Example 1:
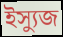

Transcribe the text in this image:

ইস্যুজ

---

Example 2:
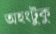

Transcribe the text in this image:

অহংটুকু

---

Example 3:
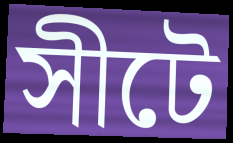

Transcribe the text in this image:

সীটে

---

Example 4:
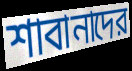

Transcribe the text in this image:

শাবানাদের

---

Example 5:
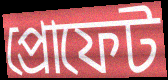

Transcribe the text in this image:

প্রোফেট